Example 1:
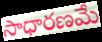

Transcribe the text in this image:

సాధారణమే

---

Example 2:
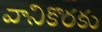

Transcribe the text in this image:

వానికొరకు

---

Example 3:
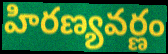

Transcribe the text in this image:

హిరణ్యవర్ణం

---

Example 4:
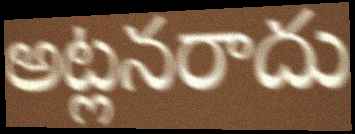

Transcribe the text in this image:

అట్లనరాదు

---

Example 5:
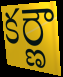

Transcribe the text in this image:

కర్ణౌ